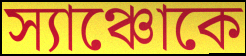
স্যাঞ্চোকে